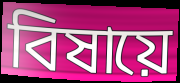
বিষায়ে